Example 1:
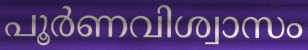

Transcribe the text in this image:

പൂർണവിശ്വാസം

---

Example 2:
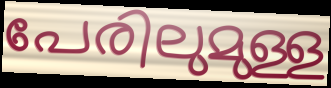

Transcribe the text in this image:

പേരിലുമുള്ള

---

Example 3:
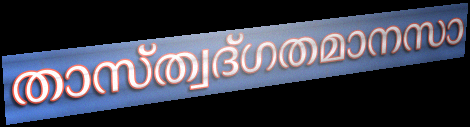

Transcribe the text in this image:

താസ്ത്വദ്ഗതമാനസാ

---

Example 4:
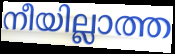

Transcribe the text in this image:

നീയില്ലാത്ത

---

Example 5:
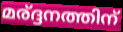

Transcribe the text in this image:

മര്ദ്ദനത്തിന്